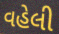
વહેલી